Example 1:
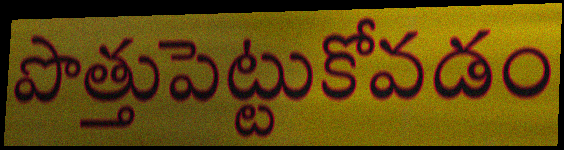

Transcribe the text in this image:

పొత్తుపెట్టుకోవడం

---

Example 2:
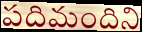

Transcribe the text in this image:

పదిమందిని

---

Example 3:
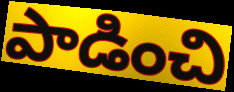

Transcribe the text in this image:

పాడించి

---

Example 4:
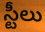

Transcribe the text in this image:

స్టీలు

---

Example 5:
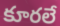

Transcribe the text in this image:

కూరలే